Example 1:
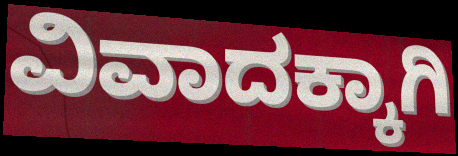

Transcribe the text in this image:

ವಿವಾದಕ್ಕಾಗಿ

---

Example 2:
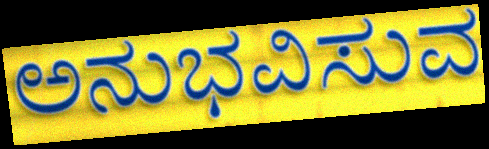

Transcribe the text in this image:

ಅನುಭವಿಸುವ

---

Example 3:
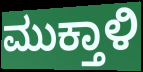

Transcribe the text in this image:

ಮುಕ್ತಾಳಿ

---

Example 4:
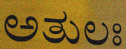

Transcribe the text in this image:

ಅತುಲಃ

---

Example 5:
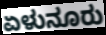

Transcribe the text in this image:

ಏಳುನೂರು